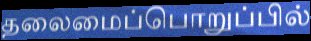
தலைமைப்பொறுப்பில்